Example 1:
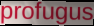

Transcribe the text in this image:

profugus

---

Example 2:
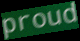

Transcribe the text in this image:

proud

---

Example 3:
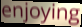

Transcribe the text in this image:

enjoying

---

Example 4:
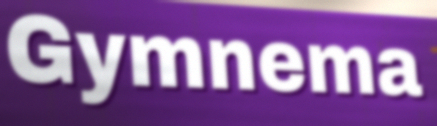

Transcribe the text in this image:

Gymnema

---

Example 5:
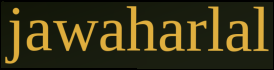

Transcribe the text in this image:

jawaharlal